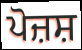
ਪੋਜ਼ਸ਼